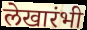
लेखारंभी